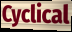
Cyclical